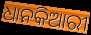
ଧାନକିଆରୀ